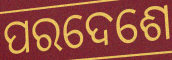
ପରଦେଶେ